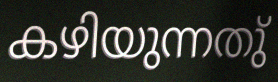
കഴിയുന്നതു്